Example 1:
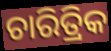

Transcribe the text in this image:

ଚାରିତ୍ରିକ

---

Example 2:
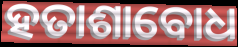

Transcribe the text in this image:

ହତାଶାବୋଧ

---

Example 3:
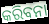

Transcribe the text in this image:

କରିବନା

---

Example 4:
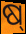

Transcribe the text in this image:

ଷ୍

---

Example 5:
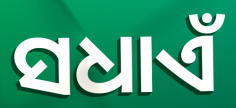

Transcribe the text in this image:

ସଧାଏଁ